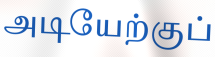
அடியேற்குப்